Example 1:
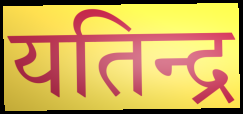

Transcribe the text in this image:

यतिन्द्र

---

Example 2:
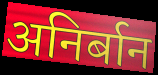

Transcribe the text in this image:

अनिर्बान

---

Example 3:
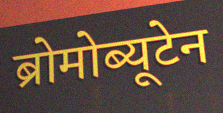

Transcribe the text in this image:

ब्रोमोब्यूटेन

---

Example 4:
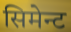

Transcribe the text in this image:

सिमेन्ट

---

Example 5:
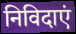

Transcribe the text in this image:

निविदाएं